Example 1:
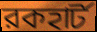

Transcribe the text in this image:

রকহার্ট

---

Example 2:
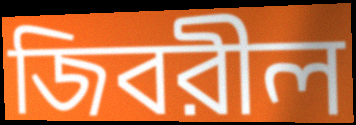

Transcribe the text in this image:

জিবরীল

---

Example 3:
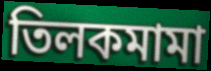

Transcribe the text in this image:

তিলকমামা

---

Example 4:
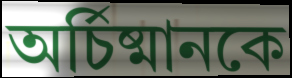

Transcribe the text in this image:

অর্চিষ্মানকে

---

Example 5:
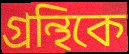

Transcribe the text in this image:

গ্রন্থিকে